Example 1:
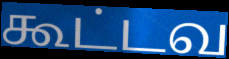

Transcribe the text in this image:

கூட்டவ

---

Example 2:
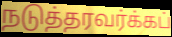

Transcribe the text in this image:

நடுத்தரவர்க்கப்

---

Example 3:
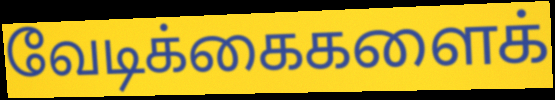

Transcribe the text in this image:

வேடிக்கைகளைக்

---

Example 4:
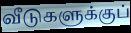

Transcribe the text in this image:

வீடுகளுக்குப்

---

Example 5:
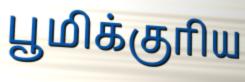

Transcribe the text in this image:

பூமிக்குரிய